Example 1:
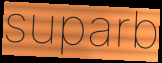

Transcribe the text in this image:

suparb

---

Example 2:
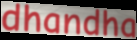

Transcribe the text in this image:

dhandha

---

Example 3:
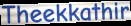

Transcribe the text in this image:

Theekkathir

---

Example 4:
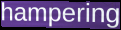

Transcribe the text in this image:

hampering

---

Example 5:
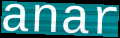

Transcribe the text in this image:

anar